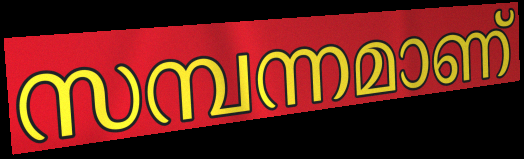
സമ്പന്നമാണ്